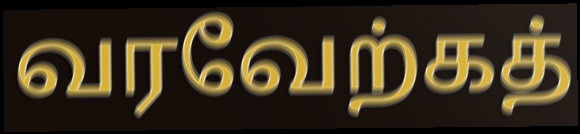
வரவேற்கத்